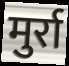
मुर्रा